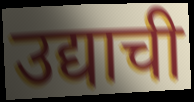
उद्याची